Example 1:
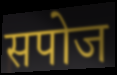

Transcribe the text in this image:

सपोज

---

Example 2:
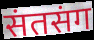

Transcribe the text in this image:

संतसंग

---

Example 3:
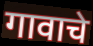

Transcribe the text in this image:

गावाचे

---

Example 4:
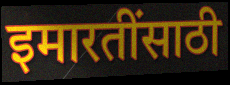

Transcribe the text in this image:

इमारतींसाठी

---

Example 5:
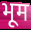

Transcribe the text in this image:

भूम